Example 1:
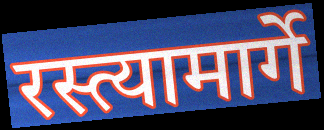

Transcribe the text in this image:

रस्त्यामार्गे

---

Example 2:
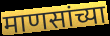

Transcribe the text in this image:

माणसांच्या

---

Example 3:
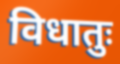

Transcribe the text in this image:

विधातुः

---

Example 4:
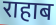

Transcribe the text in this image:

राहाब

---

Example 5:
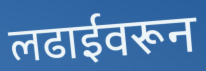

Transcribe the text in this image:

लढाईवरून